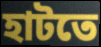
হাটতে